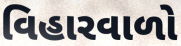
વિહારવાળો